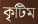
কৃটিম